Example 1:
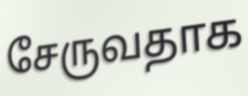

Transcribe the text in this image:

சேருவதாக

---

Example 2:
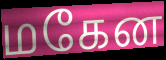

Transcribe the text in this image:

மகேன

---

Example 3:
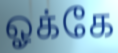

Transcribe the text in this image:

ஓக்கே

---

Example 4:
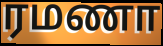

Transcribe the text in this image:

ரமணா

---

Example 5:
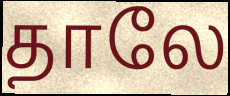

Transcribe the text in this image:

தாலே